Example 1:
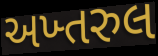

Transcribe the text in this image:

અખ્તરુલ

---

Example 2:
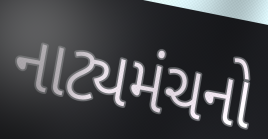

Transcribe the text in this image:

નાટ્યમંચનો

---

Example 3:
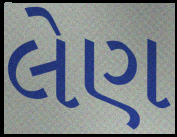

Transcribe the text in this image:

લેણ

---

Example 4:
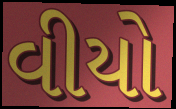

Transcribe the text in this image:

વીયો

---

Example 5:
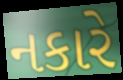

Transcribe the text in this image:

નકારે